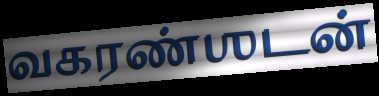
வகரண்ஶடன்